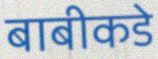
बाबीकडे